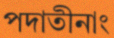
পদাতীনাং